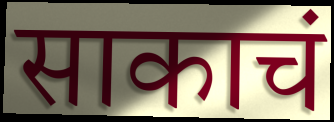
साकाचं